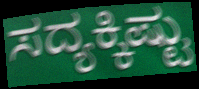
ಸದ್ಯಕ್ಕಿಷ್ಟು